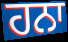
ਹਨਾ